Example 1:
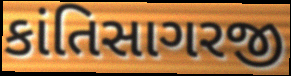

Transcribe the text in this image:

કાંતિસાગરજી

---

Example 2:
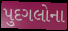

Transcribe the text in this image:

પુદગલોના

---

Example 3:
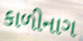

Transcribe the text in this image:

કાળીનાગ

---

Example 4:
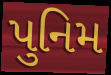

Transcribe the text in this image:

પુનિમ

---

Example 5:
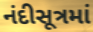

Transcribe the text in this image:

નંદીસૂત્રમાં